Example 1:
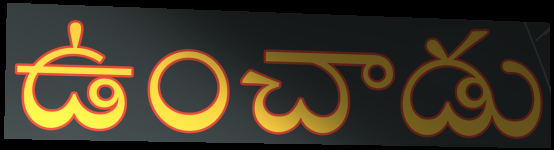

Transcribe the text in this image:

ఉంచాడు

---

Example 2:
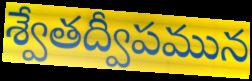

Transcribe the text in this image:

శ్వేతద్వీపమున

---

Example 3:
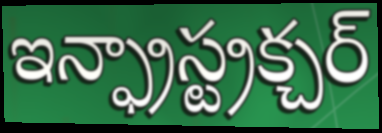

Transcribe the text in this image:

ఇన్ఫ్రాస్ట్రక్చర్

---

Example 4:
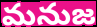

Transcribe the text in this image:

మనుజ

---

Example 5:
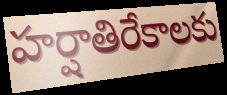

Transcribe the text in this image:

హర్షాతిరేకాలకు